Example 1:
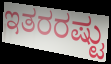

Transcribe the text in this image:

ಇತರರಷ್ಟು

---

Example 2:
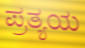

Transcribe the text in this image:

ಪ್ರತ್ಯಯ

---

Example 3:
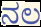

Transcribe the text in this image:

ನಲ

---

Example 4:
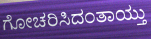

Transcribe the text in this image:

ಗೋಚರಿಸಿದಂತಾಯ್ತು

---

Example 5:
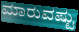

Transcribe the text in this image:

ಮಾರುವಷ್ಟು